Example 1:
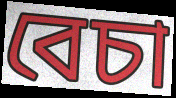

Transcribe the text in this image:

বেচা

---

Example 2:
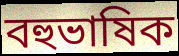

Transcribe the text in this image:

বহুভাষিক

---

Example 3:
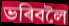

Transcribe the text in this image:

ভৰিবলৈ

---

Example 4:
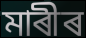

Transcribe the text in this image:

মাৰীৰ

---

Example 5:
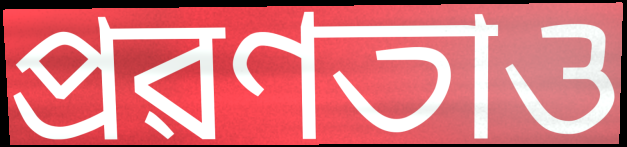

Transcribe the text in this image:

প্ৰৱণতাও